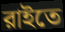
রাইতে